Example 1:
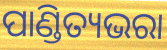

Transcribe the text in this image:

ପାଣ୍ଡିତ୍ୟଭରା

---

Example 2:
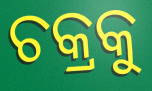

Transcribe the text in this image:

ଚକ୍ରକୁ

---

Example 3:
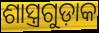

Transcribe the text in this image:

ଶାସ୍ତ୍ରଗୁଡ଼ାକ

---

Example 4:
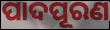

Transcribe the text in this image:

ପାଦପୂରଣ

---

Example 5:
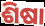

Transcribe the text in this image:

ଶିଷା